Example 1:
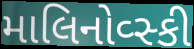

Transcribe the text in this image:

માલિનોવ્સ્કી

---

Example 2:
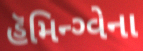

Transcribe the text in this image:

હૅમિન્ગ્વેના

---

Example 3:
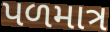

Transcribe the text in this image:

પળમાત્ર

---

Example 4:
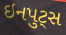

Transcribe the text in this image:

ઇનપુટ્સ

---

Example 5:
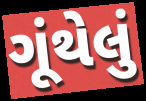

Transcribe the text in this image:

ગૂંથેલું